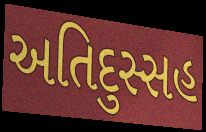
અતિદુસ્સહ